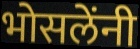
भोसलेंनी